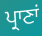
ਪ੍ਰਾਣਾਂ